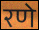
रणे